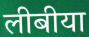
लीबीया